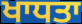
ਖਾਧਤਾ